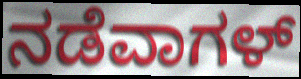
ನಡೆವಾಗಳ್